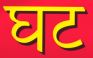
घट